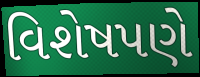
વિશેષપણે